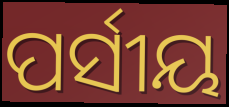
ପର୍ସୀୟ